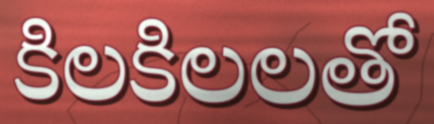
కిలకిలలతో